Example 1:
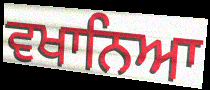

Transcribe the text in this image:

ਵਖਾਨਿਆ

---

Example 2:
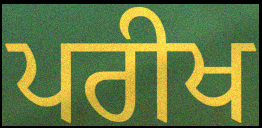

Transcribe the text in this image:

ਪਰੀਖ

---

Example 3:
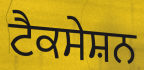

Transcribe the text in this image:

ਟੈਕਸੇਸ਼ਨ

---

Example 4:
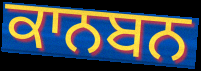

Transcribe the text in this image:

ਕਾਨਬਨ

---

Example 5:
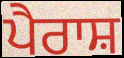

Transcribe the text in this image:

ਪੈਰਾਸ਼